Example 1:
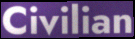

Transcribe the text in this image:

Civilian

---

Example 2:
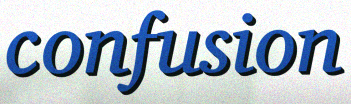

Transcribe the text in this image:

confusion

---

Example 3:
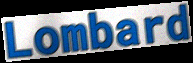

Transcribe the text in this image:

Lombard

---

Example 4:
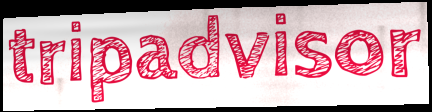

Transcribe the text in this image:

tripadvisor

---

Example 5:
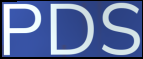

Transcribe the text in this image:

PDS